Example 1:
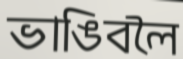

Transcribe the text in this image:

ভাঙিবলৈ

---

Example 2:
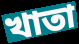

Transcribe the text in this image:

খাতা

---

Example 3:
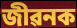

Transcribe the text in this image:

জীৱনক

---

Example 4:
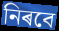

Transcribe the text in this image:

নিৰবে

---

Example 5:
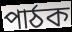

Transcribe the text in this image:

পাঠক